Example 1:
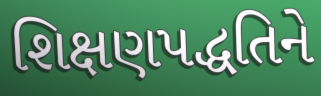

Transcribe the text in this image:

શિક્ષણપદ્ધતિને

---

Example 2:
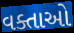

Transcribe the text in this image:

વક્તાઓ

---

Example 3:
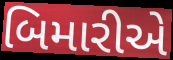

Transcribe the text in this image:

બિમારીએ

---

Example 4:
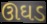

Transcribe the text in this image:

ઊઘડ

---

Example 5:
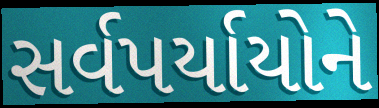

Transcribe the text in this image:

સર્વપર્યાયોને